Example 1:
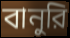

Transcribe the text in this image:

বানুরি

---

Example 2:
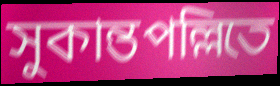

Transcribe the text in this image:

সুকান্তপল্লিতে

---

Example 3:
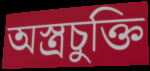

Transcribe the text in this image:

অস্ত্রচুক্তি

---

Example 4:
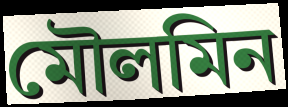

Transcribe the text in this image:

মৌলমিন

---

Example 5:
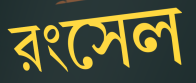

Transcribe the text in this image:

রংসেল